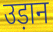
उड़ान